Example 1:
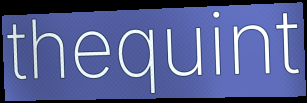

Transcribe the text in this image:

thequint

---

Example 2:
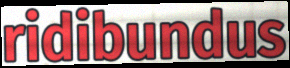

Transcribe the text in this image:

ridibundus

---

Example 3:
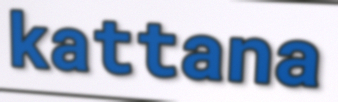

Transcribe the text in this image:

kattana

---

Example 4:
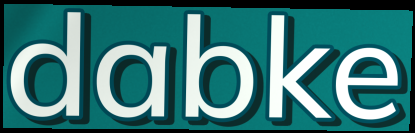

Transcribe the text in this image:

dabke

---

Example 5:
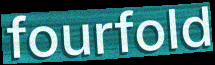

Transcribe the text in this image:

fourfold